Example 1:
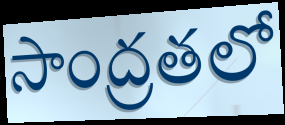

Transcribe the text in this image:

సాంద్రతలో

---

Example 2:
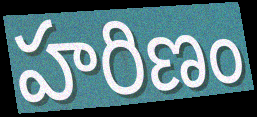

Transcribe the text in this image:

హరిణం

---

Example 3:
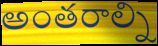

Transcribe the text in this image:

అంతరాల్ని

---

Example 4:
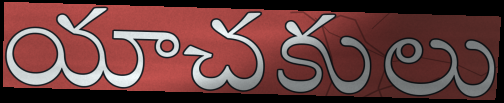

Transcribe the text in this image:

యాచకులు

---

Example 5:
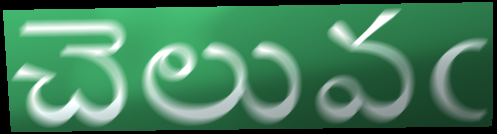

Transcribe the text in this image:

చెలువఁ